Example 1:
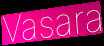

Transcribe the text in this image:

Vasara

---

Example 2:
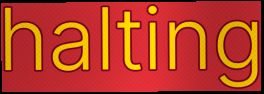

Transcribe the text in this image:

halting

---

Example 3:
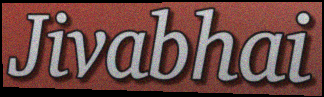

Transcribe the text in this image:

Jivabhai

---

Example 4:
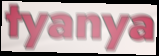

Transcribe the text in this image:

tyanya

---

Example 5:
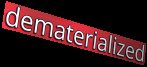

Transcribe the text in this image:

dematerialized